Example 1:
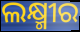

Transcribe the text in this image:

ଲକ୍ଷ୍ମୀର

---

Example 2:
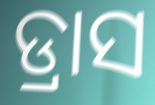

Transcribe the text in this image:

ଡ୍ରାସ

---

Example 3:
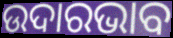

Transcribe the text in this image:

ଉଦାରଭାବ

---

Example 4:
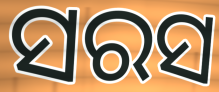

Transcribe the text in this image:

ସରସ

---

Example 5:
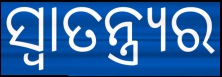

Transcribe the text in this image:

ସ୍ୱାତନ୍ତ୍ର୍ୟର